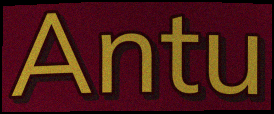
Antu